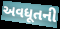
અવધૂતની